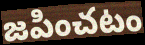
జపించటం